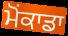
ਮੋਂਕਾਡਾ